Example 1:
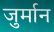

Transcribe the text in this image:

जुर्मान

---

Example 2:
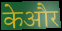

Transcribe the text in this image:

केऔर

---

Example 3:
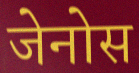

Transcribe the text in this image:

जेनोस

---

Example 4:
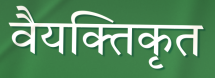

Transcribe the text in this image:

वैयक्तिकृत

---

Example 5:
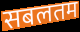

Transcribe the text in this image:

सबलतम